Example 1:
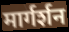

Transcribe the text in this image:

मार्गर्शन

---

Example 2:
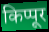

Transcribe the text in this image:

किप्पूर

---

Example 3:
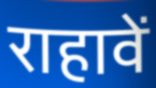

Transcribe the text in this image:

राहावें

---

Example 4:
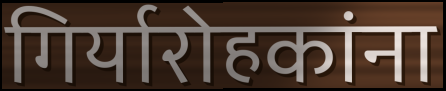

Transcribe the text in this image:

गिर्यारोहकांना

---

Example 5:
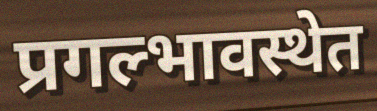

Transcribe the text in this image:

प्रगल्भावस्थेत